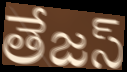
తేజస్